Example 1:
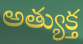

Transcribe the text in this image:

అత్యుక్త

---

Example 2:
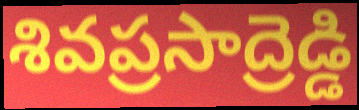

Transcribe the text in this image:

శివప్రసాద్రెడ్డి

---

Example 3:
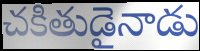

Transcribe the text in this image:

చకితుడైనాడు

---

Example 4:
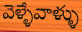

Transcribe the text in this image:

వెళ్ళేవాళ్ళు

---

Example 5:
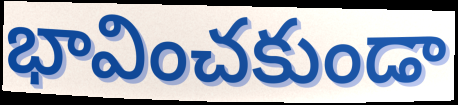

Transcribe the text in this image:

భావించకుండా